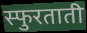
स्फुरताती